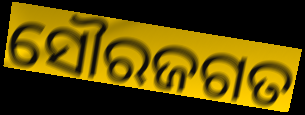
ସୌରଜଗତ